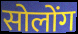
सोलोंग